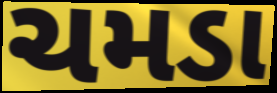
ચમડા